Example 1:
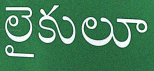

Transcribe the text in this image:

లైకులూ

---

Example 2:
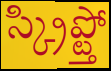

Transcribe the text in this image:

స్క్రిప్ట్తో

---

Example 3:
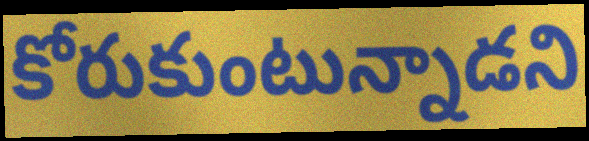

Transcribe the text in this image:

కోరుకుంటున్నాడని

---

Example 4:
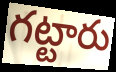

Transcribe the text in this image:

గట్టారు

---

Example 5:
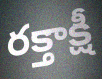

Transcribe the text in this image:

రక్తాక్షీ